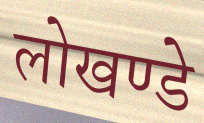
लोखण्डे